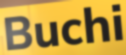
Buchi